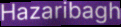
Hazaribagh